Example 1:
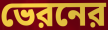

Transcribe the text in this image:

ভেরনের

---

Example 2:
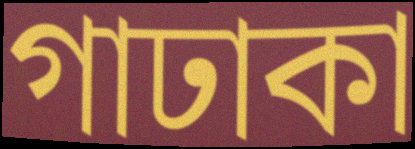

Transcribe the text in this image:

গাঢাকা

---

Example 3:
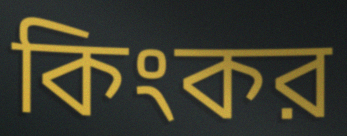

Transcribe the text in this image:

কিংকর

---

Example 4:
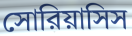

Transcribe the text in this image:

সোরিয়াসিস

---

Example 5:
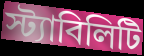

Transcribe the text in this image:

স্ট্যাবিলিটি